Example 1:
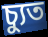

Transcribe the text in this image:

চ্যুত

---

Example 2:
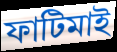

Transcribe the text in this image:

ফাটিমাই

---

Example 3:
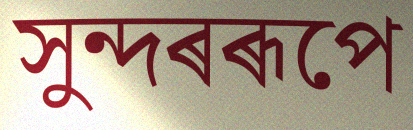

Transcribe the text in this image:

সুন্দৰৰূপে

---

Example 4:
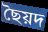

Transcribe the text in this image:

ছৈয়দ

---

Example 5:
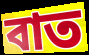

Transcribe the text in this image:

বাত